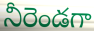
నీరెండగా